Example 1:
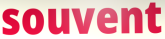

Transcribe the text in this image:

souvent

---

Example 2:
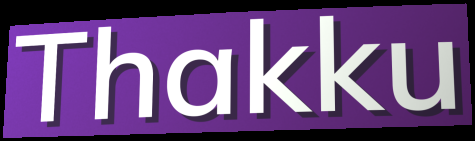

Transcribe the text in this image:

Thakku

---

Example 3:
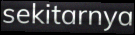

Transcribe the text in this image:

sekitarnya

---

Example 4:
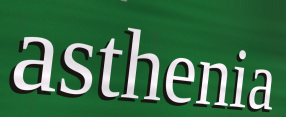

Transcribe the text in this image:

asthenia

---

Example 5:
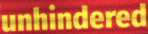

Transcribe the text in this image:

unhindered